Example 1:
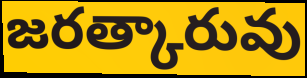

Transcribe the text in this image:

జరత్కారువు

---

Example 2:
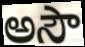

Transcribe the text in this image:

అసౌ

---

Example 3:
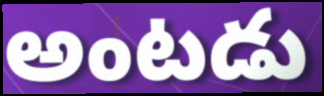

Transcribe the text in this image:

అంటడు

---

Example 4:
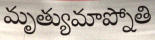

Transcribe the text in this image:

మృత్యుమాప్నోతి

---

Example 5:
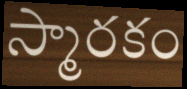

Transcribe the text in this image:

స్మారకం